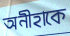
অনীহাকে